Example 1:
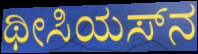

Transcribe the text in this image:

ಥೀಸಿಯಸ್‌ನ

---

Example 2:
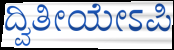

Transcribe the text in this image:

ದ್ವಿತೀಯೇಽಪಿ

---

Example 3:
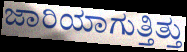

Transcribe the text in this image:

ಜಾರಿಯಾಗುತ್ತಿತ್ತು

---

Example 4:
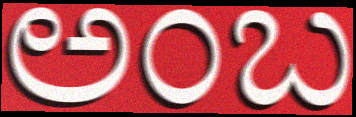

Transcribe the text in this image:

ಅಂಬ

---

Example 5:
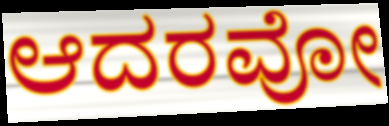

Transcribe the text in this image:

ಆದರವೋ